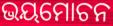
ଭୟମୋଚନ